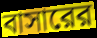
বাসারের